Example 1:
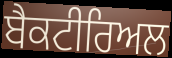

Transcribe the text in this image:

ਬੈਕਟੀਰਿਅਲ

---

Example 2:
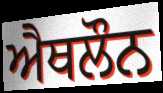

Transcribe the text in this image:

ਐਥਲੌਨ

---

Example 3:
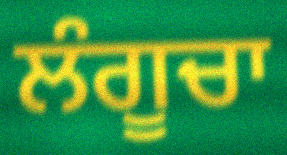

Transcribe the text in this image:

ਲੰਗੂਚਾ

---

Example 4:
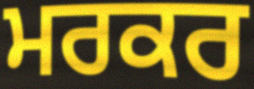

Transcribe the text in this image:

ਮਰਕਰ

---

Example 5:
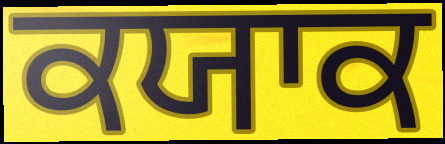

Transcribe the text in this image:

ਕਯਾਕ